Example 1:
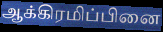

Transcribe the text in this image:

ஆக்கிரமிப்பினை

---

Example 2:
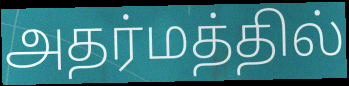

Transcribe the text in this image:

அதர்மத்தில்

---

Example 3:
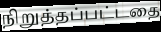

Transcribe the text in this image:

நிறுத்தப்பட்டதை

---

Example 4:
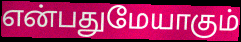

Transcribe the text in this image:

என்பதுமேயாகும்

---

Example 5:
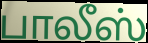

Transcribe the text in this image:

பாலீஸ்